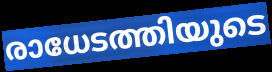
രാധേടത്തിയുടെ